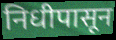
निधीपासून